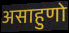
असाहुणो